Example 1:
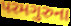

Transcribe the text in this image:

પરમગુરુના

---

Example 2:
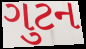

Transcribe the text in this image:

ગુટન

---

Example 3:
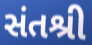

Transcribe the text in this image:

સંતશ્રી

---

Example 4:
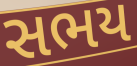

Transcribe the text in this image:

સભય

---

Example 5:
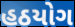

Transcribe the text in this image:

હઠયોગ